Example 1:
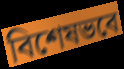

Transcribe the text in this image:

বিশেষভবে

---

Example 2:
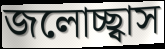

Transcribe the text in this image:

জলোচ্ছ্বাস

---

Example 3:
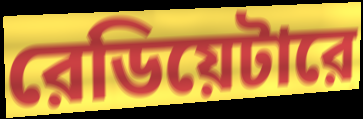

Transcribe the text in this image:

রেডিয়েটারে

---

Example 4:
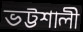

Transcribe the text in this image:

ভট্টশালী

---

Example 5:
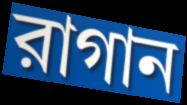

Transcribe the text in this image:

রাগান